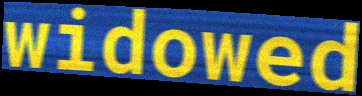
widowed